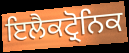
ਇਲੈਕਟ੍ਰੋਨਿਕ